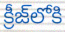
క్రీజ్‌లోకి